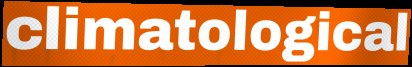
climatological